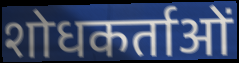
शोधकर्ताओं